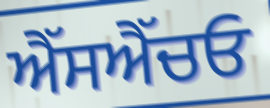
ਐੱਸਐੱਚਓ